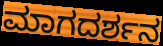
ಮಾಗದರ್ಶನ